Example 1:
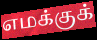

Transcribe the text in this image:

எமக்குக்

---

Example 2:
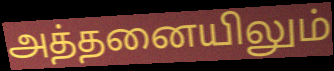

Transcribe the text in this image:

அத்தனையிலும்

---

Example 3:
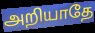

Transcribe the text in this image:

அறியாதே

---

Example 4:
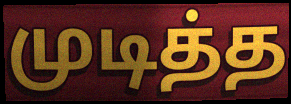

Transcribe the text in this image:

முடித்த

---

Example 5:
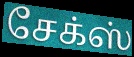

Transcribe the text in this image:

சேக்ஸ்